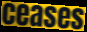
ceases